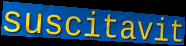
suscitavit